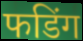
फडिंग